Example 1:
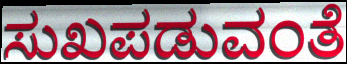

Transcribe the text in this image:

ಸುಖಪಡುವಂತೆ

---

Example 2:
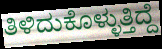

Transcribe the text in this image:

ತಿಳಿದುಕೊಳ್ಳುತ್ತಿದ್ದೆ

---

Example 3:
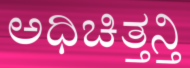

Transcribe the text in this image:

ಅಧಿಚಿತ್ತನ್ತಿ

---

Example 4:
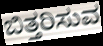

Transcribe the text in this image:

ಬಿತ್ತರಿಸುವ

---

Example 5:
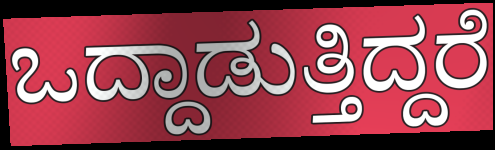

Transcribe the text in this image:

ಒದ್ದಾಡುತ್ತಿದ್ದರೆ